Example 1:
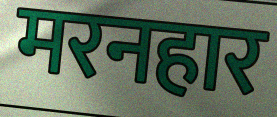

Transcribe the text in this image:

मरनहार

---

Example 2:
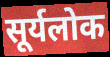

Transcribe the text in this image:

सूर्यलोक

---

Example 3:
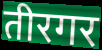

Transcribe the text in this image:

तीरगर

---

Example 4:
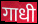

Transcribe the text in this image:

गाधी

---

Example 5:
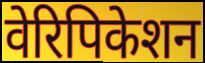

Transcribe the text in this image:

वेरिपिकेशन